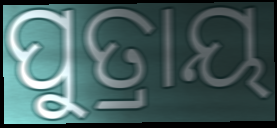
ପୁତ୍ରାୟ